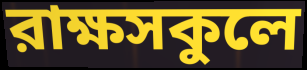
রাক্ষসকুলে